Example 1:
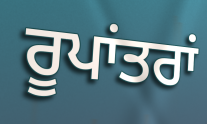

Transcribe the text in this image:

ਰੂਪਾਂਤਰਾਂ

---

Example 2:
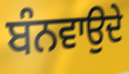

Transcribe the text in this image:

ਬੰਨਵਾਉਦੇ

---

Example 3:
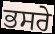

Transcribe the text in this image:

ਭਸਰੇ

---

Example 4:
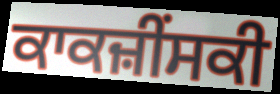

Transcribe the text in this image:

ਕਾਕਜ਼ੀੰਸਕੀ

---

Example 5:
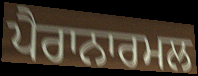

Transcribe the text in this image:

ਪੈਰਾਨਾਰਮਲ